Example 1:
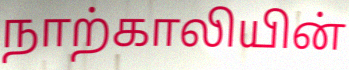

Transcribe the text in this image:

நாற்காலியின்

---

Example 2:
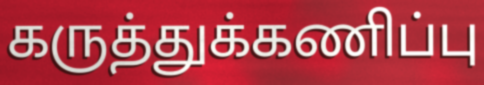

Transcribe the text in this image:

கருத்துக்கணிப்பு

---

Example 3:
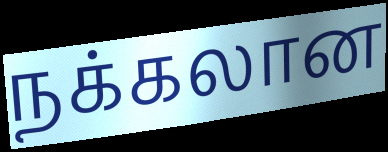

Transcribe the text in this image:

நக்கலான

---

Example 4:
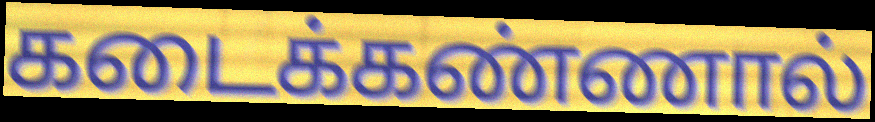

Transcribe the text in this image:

கடைக்கண்ணால்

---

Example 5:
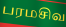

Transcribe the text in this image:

பரமசிவ